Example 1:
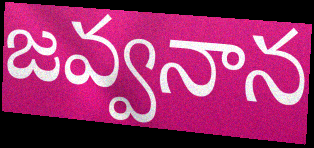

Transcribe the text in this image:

జవ్వనాన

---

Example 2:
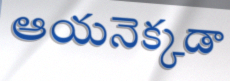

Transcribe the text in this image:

ఆయనెక్కడా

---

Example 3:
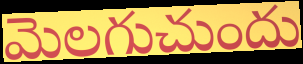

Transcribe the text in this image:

మెలగుచుందు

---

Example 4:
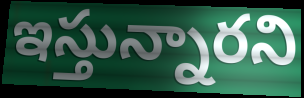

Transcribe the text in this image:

ఇస్తున్నారని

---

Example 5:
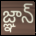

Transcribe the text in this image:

జ్ఞాన్